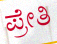
ಪ್ರೇತಿ